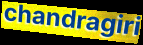
chandragiri